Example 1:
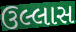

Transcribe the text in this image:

ઉલ્લાસ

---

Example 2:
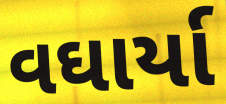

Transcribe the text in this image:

વઘાર્યા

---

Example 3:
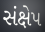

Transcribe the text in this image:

સંક્ષેપ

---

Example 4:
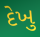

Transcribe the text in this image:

દેખુ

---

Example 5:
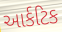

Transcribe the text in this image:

આર્કટિક